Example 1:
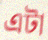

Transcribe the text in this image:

এটা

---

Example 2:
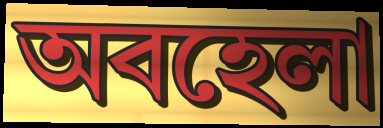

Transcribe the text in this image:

অবহেলা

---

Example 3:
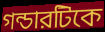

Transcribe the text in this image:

গন্ডারটিকে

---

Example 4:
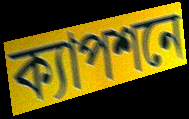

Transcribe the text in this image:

ক্যাপশনে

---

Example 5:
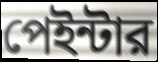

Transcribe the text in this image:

পেইন্টার